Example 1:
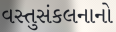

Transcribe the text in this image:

વસ્તુસંકલનાનો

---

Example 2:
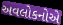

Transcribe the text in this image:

અવલોકનોએ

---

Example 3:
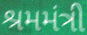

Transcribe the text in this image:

શ્રમમંત્રી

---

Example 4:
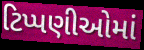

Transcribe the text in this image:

ટિપ્પણીઓમાં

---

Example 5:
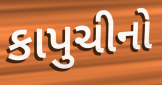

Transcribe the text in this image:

કાપુચીનો